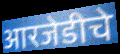
आरजेडीचे